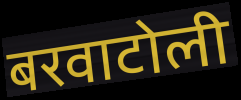
बरवाटोली